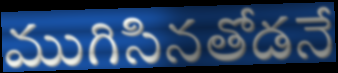
ముగిసినతోడనే